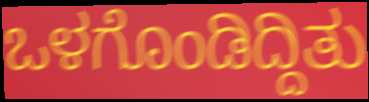
ಒಳಗೊಂಡಿದ್ದಿತು